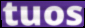
tuos